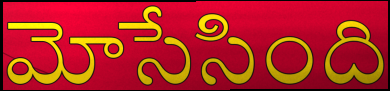
మోసేసింది